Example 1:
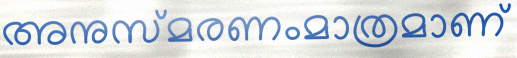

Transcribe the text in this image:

അനുസ്മരണംമാത്രമാണ്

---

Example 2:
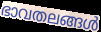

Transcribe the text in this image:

ഭാവതലങ്ങൾ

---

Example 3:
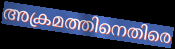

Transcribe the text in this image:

അക്രമത്തിനെതിരെ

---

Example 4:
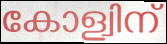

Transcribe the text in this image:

കോള്വിന്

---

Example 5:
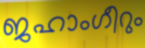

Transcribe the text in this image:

ജഹാംഗീറും